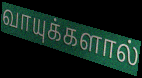
வாயுக்களால்